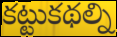
కట్టుకథల్ని